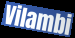
Vilambi